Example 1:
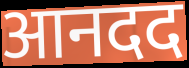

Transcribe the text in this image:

आनदद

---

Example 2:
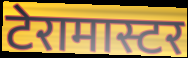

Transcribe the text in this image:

टेरामास्टर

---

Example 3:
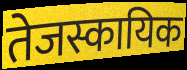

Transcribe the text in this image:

तेजस्कायिक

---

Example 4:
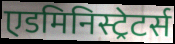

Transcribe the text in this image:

एडमिनिस्ट्रेटर्स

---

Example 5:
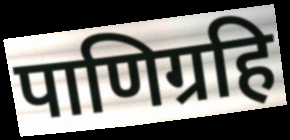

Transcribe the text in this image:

पाणिग्रहि